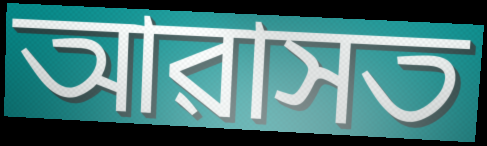
আৱাসত